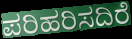
ಪರಿಹರಿಸದಿರೆ